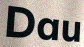
Dau